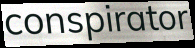
conspirator